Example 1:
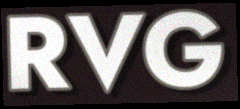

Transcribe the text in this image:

RVG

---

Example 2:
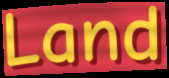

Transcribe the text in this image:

Land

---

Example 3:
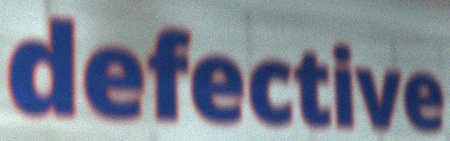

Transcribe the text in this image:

defective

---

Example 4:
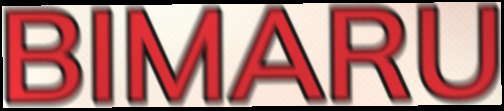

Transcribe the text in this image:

BIMARU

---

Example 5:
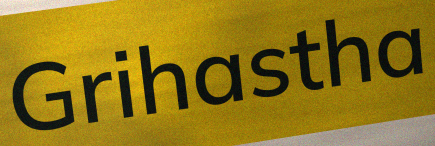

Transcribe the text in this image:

Grihastha